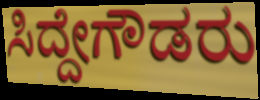
ಸಿದ್ದೇಗೌಡರು